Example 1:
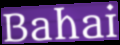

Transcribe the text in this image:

Bahai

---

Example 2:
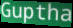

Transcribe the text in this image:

Guptha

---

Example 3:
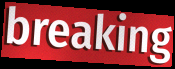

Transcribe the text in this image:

breaking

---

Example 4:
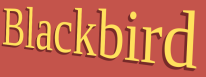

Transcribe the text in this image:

Blackbird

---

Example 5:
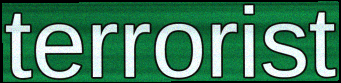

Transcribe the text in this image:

terrorist